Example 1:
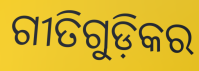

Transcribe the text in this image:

ଗୀତିଗୁଡ଼ିକର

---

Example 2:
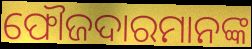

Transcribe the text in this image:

ଫୌଜଦାରମାନଙ୍କ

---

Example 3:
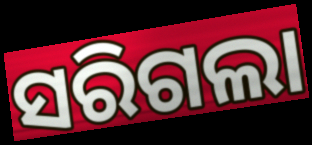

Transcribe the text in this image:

ସରିଗଲା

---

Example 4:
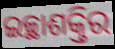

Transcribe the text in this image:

ଇଚ୍ଛାଶକ୍ତିର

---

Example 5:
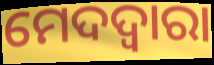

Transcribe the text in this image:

ମେଦଦ୍ଵାରା